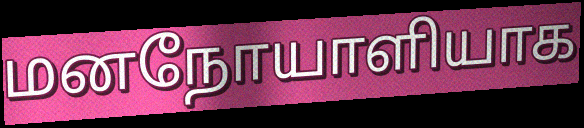
மனநோயாளியாக